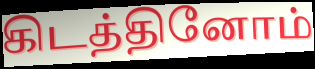
கிடத்தினோம்